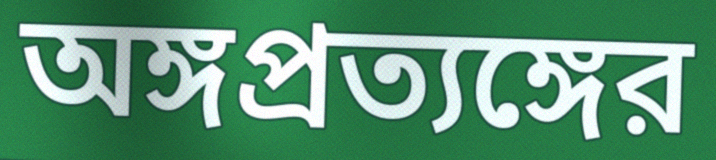
অঙ্গপ্রত্যঙ্গের